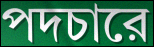
পদচারে